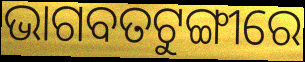
ଭାଗବତଟୁଙ୍ଗୀରେ